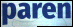
paren